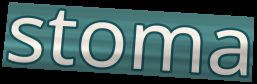
stoma